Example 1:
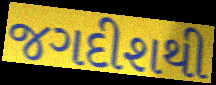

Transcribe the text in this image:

જગદીશથી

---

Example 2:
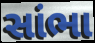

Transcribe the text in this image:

સાંભા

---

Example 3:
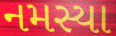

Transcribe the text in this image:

નમસ્યા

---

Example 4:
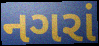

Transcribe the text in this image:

નગરાં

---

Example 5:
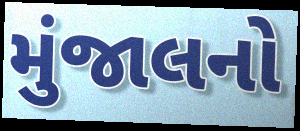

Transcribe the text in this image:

મુંજાલનો